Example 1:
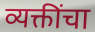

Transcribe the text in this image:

व्यक्तींचा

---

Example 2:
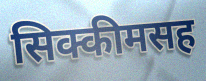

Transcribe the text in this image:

सिक्कीमसह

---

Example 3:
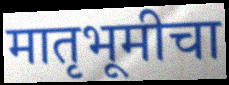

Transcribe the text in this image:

मातृभूमीचा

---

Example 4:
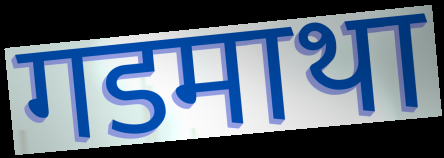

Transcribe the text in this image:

गडमाथा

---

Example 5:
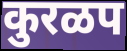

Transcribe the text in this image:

कुरळप